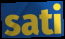
sati